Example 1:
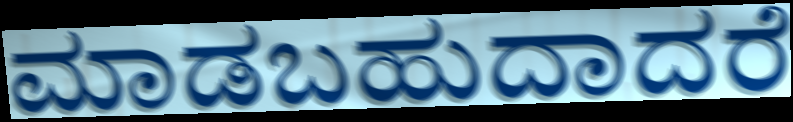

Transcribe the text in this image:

ಮಾಡಬಹುದಾದರೆ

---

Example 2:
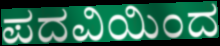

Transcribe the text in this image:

ಪದವಿಯಿಂದ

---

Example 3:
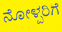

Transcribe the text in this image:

ನೋಳ್ಪರಿಗೆ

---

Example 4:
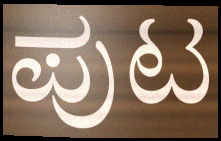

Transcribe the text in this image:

ಪುಟ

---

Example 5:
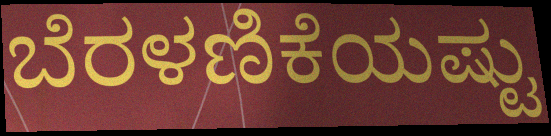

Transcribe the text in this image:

ಬೆರಳಣಿಕೆಯಷ್ಟು